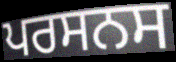
ਪਰਸਨਸ